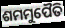
ଶମମୁପୈତି